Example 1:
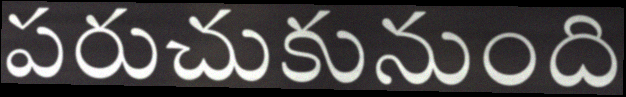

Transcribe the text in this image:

పరుచుకునుంది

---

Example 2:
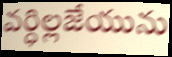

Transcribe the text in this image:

వర్ధిల్లజేయును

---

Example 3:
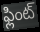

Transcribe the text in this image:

ఫ్లింట్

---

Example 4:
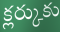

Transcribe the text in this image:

క్లర్కుకు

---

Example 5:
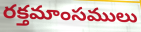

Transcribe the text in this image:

రక్తమాంసములు